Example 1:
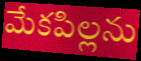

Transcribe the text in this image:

మేకపిల్లను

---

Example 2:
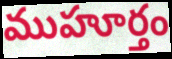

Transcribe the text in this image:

ముహూర్తం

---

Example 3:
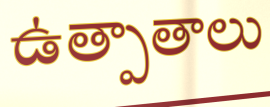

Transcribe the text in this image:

ఉత్పాతాలు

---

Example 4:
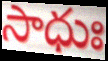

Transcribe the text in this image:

సాధుః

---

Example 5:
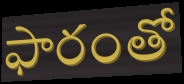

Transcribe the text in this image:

ఫారంతో